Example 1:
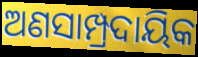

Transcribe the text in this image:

ଅଣସାମ୍ପ୍ରଦାୟିକ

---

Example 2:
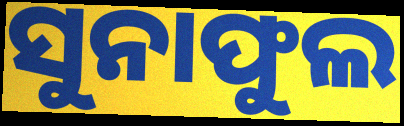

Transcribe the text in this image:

ସୁନାଫୁଲ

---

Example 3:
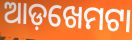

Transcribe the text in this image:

ଆଡ଼ଖେମଟା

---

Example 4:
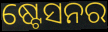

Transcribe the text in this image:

ଷ୍ଟେସନର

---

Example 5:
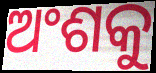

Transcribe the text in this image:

ଅଂଶକୁ